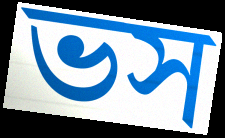
ভস